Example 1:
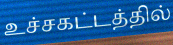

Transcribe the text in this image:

உச்சகட்டத்தில்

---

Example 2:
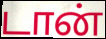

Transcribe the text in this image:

டான்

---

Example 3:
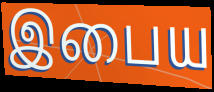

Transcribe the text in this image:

இபைய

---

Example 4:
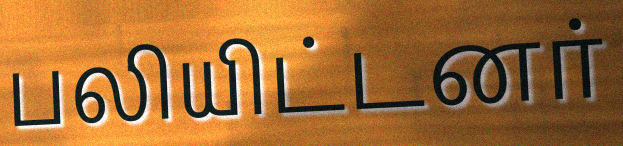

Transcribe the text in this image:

பலியிட்டனர்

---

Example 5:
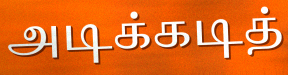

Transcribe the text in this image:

அடிக்கடித்